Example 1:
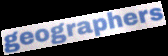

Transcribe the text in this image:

geographers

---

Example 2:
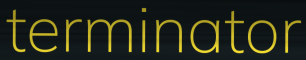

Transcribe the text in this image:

terminator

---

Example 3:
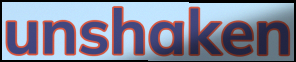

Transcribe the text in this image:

unshaken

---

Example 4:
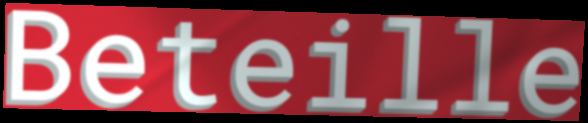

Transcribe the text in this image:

Beteille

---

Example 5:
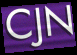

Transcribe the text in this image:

CJN